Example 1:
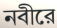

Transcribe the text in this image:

নবীরে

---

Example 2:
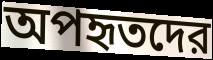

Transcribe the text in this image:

অপহৃতদের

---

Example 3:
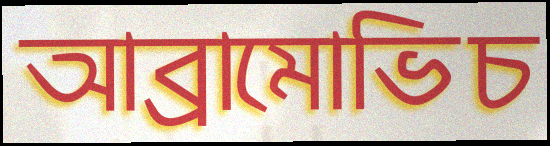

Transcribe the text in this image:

আব্রামোভিচ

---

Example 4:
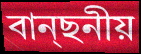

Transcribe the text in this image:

বান্ছনীয়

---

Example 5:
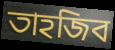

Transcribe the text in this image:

তাহজিব